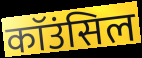
कॉउंसिल